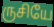
ருசியே